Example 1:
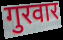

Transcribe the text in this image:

गुरवार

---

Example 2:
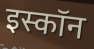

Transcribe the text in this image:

इस्कॉन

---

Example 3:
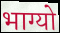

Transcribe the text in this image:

भाग्यो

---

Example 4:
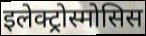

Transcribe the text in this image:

इलेक्ट्रोस्मोसिस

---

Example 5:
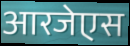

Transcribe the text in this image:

आरजेएस